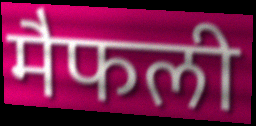
मैफली